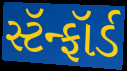
સ્ટૅન્ફૉર્ડ